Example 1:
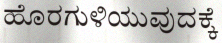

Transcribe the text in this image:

ಹೊರಗುಳಿಯುವುದಕ್ಕೆ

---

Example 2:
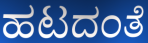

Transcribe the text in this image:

ಹಟದಂತೆ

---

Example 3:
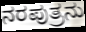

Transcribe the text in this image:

ನರಪುತ್ರನು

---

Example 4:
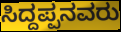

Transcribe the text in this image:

ಸಿದ್ದಪ್ಪನವರು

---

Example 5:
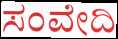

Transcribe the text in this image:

ಸಂವೇದಿ